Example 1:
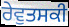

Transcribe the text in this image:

ਰੇਵੁਤਸਕੀ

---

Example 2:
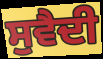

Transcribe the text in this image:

ਸੁਵੈਦੀ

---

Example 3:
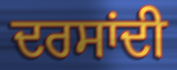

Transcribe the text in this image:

ਦਰਸਾਂਦੀ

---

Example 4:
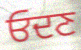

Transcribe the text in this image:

ਓਦਣ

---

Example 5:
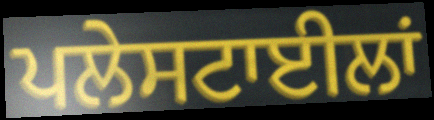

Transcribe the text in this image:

ਪਲੇਸਟਾਈਲਾਂ